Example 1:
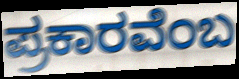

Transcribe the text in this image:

ಪ್ರಕಾರವೆಂಬ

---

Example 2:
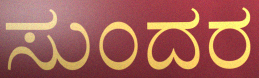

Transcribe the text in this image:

ಸುಂದರ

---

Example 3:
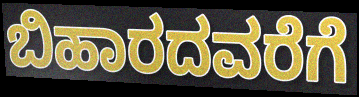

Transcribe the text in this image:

ಬಿಹಾರದವರೆಗೆ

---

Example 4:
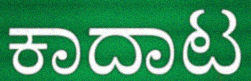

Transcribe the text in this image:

ಕಾದಾಟ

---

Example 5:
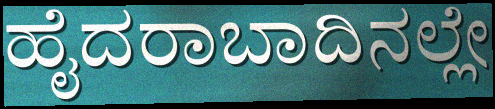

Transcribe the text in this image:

ಹೈದರಾಬಾದಿನಲ್ಲೇ